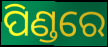
ପିଣ୍ଡରେ